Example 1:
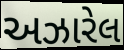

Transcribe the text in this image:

અઝારેલ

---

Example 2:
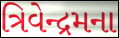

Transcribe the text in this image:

ત્રિવેન્દ્રમના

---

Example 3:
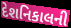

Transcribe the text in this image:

દેશનિકાલની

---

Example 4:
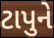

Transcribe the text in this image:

ટાપુને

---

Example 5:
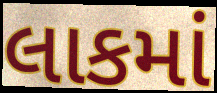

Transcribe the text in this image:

લાકમાં